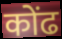
कोंढ